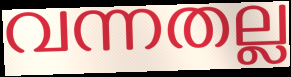
വന്നതല്ല